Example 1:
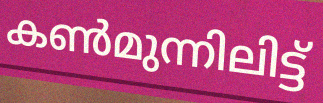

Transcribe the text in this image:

കൺമുന്നിലിട്ട്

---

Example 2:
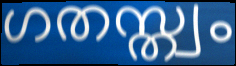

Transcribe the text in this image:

ഗതസ്ത്വം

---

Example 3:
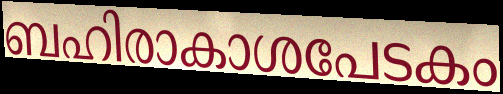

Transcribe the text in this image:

ബഹിരാകാശപേടകം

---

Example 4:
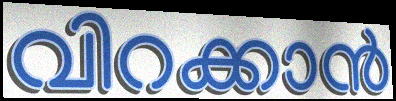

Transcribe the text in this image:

വിറക്കാൻ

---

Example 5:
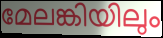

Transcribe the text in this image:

മേലങ്കിയിലും